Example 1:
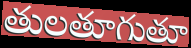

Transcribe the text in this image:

తులతూగుతూ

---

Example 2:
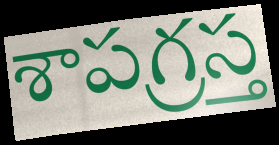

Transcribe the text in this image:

శాపగ్రస్త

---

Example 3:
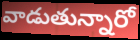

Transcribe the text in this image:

వాడుతున్నారో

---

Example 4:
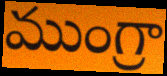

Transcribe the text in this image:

ముంగ్రా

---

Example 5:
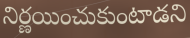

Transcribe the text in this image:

నిర్ణయించుకుంటాడని